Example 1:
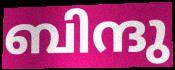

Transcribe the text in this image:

ബിന്ദു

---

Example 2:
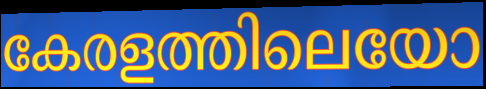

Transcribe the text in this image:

കേരളത്തിലെയോ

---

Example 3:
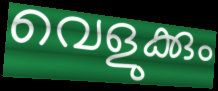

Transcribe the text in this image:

വെളുക്കും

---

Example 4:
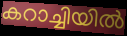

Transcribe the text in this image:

കറാച്ചിയിൽ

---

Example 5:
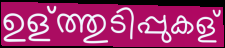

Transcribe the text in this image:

ഉള്ത്തുടിപ്പുകള്